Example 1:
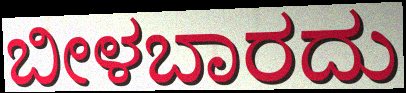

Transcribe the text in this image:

ಬೀಳಬಾರದು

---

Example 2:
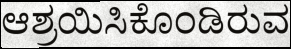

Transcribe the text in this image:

ಆಶ್ರಯಿಸಿಕೊಂಡಿರುವ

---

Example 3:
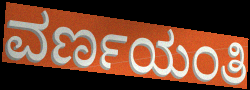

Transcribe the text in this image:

ವರ್ಣಯಂತಿ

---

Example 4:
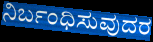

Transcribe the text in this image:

ನಿರ್ಬಂಧಿಸುವುದರ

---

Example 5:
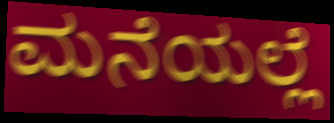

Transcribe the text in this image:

ಮನೆಯಲ್ಲೆ